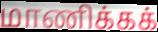
மாணிக்கக்